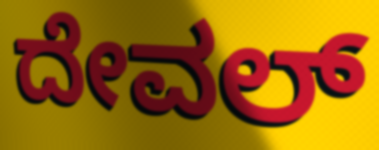
ದೇವಲ್